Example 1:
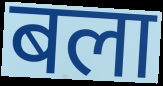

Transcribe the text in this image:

बला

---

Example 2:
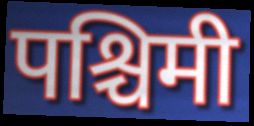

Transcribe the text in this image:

पश्चिमी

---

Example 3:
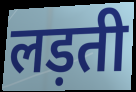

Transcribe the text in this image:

लड़ती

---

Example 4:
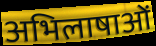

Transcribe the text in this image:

अभिलाषाओं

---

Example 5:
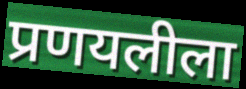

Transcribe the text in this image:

प्रणयलीला